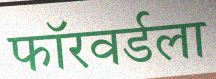
फॉरवर्डला